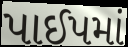
પાઈપમાં